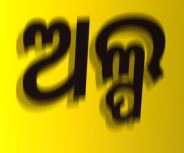
ଅଲ୍ପ